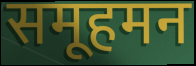
समूहमन